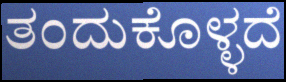
ತಂದುಕೊಳ್ಳದೆ